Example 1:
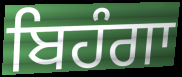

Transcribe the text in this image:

ਬਿਹੰਗਾ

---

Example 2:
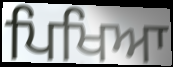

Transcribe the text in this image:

ਪਿਖਿਆ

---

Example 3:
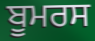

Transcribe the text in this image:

ਬੂਮਰਸ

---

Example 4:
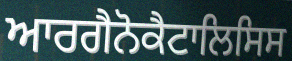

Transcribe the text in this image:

ਆਰਗੈਨੋਕੈਟਾਲਿਸਿਸ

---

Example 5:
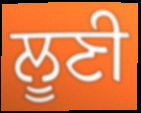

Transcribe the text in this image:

ਲੂਣੀ